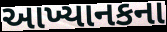
આખ્યાનકના